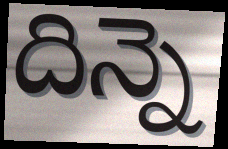
దిన్నె